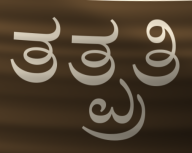
ತತ್ಪ್ರತಿ